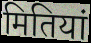
मितियां